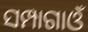
ସମ୍ପାଗାଓଁ